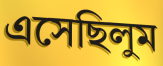
এসেছিলুম